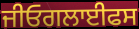
ਜੀਓਗਲਾਈਫਸ